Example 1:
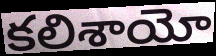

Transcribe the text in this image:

కలిశాయో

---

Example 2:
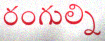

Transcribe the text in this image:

రంగుల్ని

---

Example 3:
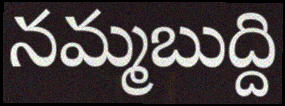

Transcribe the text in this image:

నమ్మబుద్ది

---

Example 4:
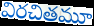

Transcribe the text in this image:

విరచితమూ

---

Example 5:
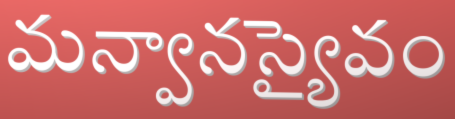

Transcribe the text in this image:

మన్వానస్యైవం